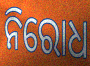
ନିରୋଧ